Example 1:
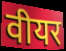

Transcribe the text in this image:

वीयर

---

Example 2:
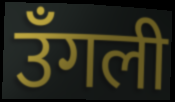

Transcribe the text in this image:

उँगली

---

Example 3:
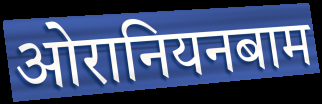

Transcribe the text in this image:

ओरानियनबाम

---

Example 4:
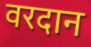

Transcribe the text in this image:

वरदान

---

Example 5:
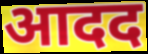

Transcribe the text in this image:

आदद